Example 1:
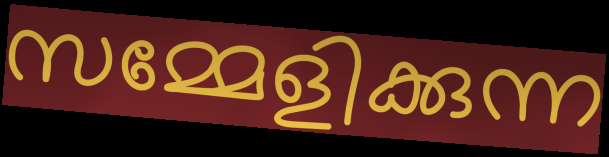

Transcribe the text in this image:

സമ്മേളിക്കുന്ന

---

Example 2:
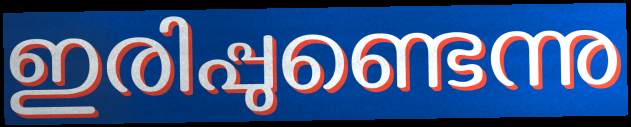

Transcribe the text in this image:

ഇരിപ്പുണ്ടെന്നു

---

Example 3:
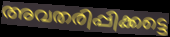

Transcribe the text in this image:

അവതരിപ്പിക്കട്ടെ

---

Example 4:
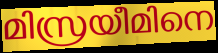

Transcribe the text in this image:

മിസ്രയീമിനെ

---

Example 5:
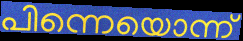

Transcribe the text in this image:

പിന്നെയൊന്ന്